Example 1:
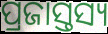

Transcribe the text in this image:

ପ୍ରଜାସ୍ତସ୍ୟ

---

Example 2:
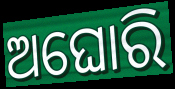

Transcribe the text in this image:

ଅଘୋରି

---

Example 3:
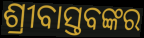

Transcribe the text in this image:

ଶ୍ରୀବାସ୍ତବଙ୍କର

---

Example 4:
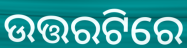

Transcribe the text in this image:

ଉତ୍ତରଟିରେ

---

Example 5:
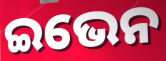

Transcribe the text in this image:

ଇଭେନ